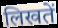
लिखतें